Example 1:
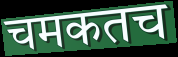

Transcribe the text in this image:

चमकतच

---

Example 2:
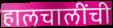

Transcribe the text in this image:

हालचालींची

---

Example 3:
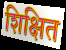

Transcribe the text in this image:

शिक्षित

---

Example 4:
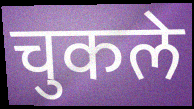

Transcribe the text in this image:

चुकले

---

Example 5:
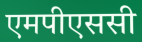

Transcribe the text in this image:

एमपीएससी